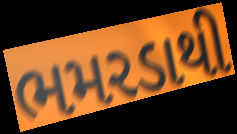
ભમરડાથી